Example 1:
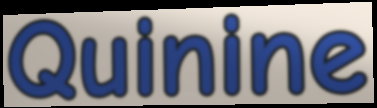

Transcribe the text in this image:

Quinine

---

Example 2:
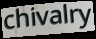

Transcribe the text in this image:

chivalry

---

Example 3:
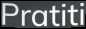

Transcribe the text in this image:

Pratiti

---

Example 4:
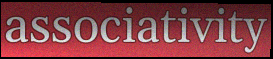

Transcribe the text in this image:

associativity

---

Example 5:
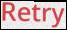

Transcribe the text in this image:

Retry